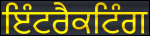
ਇੰਟਰੈਕਟਿੰਗ